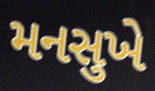
મનસુખે